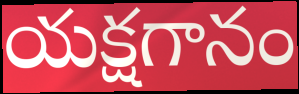
యక్షగానం